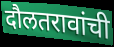
दौलतरावांची